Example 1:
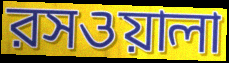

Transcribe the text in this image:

রসওয়ালা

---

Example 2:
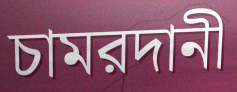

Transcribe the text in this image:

চামরদানী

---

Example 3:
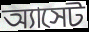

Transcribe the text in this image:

অ্যাসেট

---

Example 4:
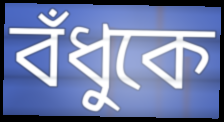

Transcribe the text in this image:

বঁধুকে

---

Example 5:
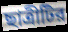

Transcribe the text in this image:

ছাত্রীটির